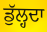
ਡੁੱਲ੍ਹਦਾ